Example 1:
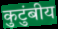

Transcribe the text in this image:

कुटुंबीय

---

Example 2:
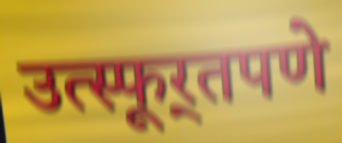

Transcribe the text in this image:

उत्स्फूर्तपणे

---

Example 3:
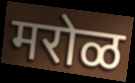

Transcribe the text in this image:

मरोळ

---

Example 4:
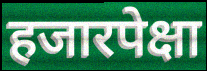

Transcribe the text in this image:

हजारपेक्षा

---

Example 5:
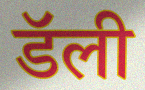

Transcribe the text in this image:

डॅली